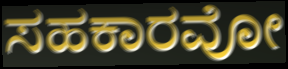
ಸಹಕಾರವೋ